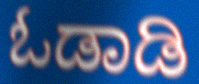
ಓಡಾಡಿ